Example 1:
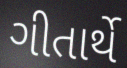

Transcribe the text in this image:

ગીતાર્થે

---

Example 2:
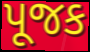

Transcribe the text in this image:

પૂજક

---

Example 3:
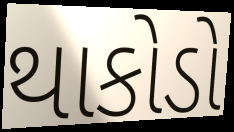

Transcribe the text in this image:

થાકોડો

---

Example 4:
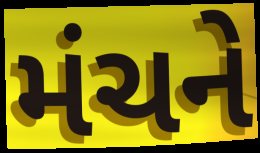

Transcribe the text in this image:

મંચને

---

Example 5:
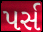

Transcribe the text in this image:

પર્સ